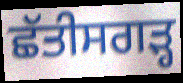
ਛੱਤੀਸਗੜ੍ਹ